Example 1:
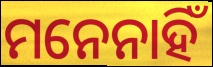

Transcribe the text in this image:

ମନେନାହିଁ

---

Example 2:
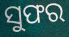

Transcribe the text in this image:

ସୁଫର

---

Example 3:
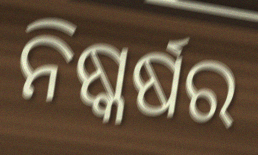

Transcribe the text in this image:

ନିଷ୍କର୍ଷର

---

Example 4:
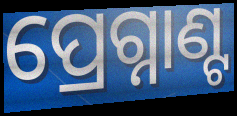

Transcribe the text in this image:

ପ୍ରେଗ୍ନାଣ୍ଟ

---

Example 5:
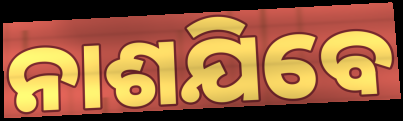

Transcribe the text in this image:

ନାଶଯିବେ